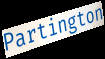
Partington